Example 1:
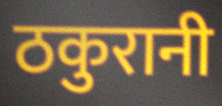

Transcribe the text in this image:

ठकुरानी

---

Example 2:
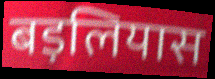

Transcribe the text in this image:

बड़लियास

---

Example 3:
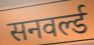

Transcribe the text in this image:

सनवर्ल्ड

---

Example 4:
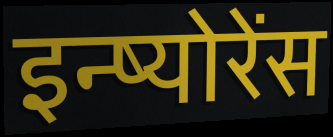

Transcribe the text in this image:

इन्ष्योरेंस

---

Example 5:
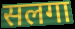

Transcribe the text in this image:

सलगा